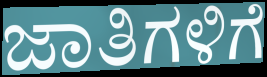
ಜಾತಿಗಳಿಗೆ